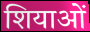
शियाओं